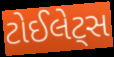
ટોઈલેટ્સ